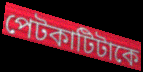
পেটকাটিটাকে